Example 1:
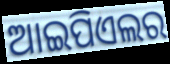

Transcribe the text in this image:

ଆଇପିଏଲର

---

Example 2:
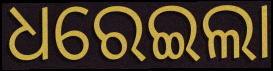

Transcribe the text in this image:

ଧରେଇଲା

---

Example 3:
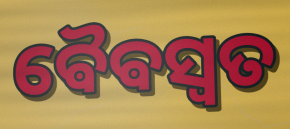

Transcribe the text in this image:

ଵୈଵସ୍ୱତ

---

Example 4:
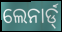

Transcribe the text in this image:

ଲେନାର୍ଡ୍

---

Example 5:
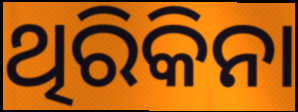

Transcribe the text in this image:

ଥିରିକିନା